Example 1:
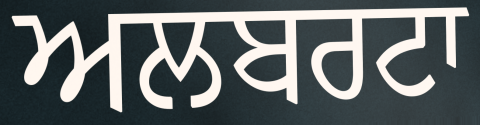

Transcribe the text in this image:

ਅਲਬਰਟਾ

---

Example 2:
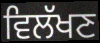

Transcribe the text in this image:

ਵਿਲੱਖਣ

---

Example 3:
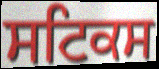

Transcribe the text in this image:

ਸਟਿਕਸ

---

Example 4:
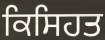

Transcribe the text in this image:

ਕਿਸਿਹਤ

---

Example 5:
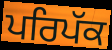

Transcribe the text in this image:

ਪਰਿਪੱਕ